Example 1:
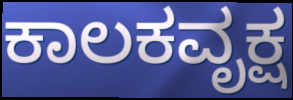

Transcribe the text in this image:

ಕಾಲಕವೃಕ್ಷ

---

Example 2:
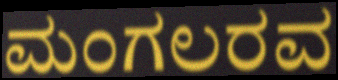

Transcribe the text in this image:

ಮಂಗಲರವ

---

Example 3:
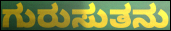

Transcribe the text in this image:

ಗುರುಸುತನು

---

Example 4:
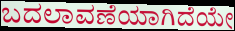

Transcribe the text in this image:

ಬದಲಾವಣೆಯಾಗಿದೆಯೇ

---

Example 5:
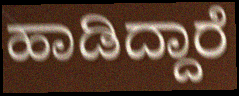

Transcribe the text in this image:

ಹಾಡಿದ್ದಾರೆ